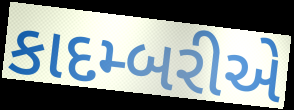
કાદમ્બરીએ